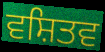
ਵਸ਼ਿਤਵ